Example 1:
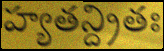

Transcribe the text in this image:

హ్యతన్ద్రితః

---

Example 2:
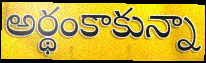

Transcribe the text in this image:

అర్థంకాకున్నా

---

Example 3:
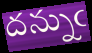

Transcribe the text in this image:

దన్నుఁ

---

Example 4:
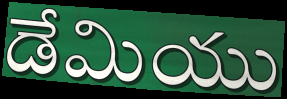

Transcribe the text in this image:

డేమియు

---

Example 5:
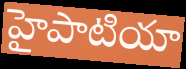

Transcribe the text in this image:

హైపాటియా